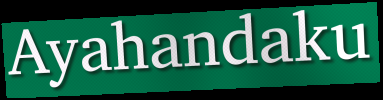
Ayahandaku